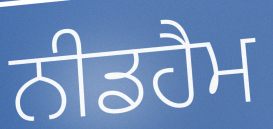
ਨੀਡਹੈਮ